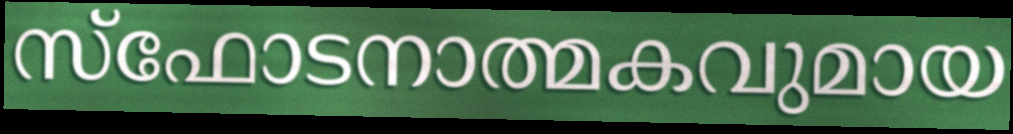
സ്ഫോടനാത്മകവുമായ